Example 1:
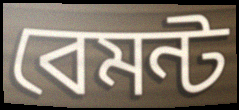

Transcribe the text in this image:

বেমন্ট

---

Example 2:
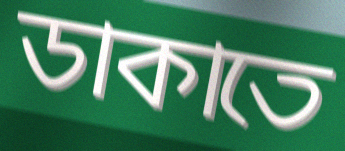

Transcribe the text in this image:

ডাকাতে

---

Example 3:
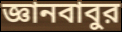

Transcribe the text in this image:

জ্ঞানবাবুর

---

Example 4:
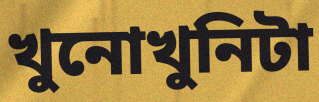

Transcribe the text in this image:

খুনোখুনিটা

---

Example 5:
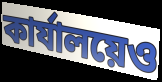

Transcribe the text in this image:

কার্যালয়েও